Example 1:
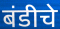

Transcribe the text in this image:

बंडीचे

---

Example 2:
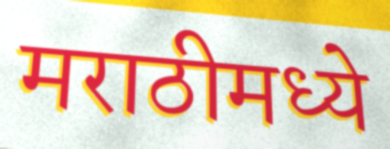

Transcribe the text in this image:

मराठीमध्ये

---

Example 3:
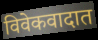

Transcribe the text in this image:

विवेकवादात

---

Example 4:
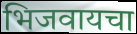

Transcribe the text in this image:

भिजवायचा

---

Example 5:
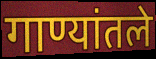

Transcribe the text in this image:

गाण्यांतले